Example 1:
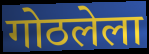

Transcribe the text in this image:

गोठलेला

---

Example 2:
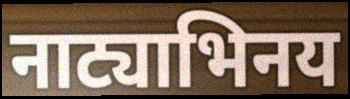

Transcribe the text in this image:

नाट्याभिनय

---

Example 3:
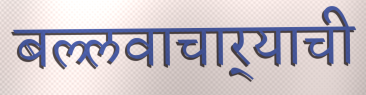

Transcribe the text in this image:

बल्लवाचार्याची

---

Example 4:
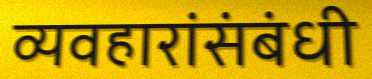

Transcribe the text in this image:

व्यवहारांसंबंधी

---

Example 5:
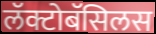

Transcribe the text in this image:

लॅक्टोबॅसिलस